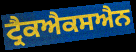
ਟ੍ਰੈਕਐਕਸਐਨ